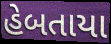
હેબતાયા